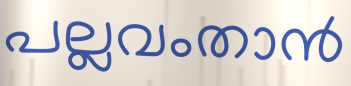
പല്ലവംതാൻ